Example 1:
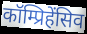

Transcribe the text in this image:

कॉम्प्रिहेंसिव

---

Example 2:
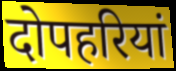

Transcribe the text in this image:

दोपहरियां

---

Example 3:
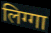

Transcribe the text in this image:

लिग्गा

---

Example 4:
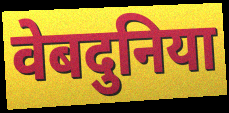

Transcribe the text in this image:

वेबदुनिया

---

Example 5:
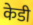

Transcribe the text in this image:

केडी